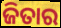
ଜିତାର